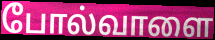
போல்வாளை